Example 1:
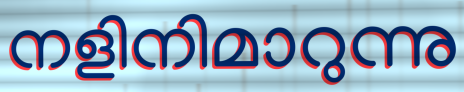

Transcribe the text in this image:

നളിനിമാറുന്നു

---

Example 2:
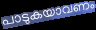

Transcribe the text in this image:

പാടുകയാവണം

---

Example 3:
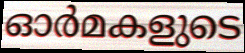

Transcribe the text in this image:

ഓർമകളുടെ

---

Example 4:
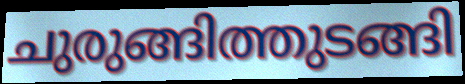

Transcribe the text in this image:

ചുരുങ്ങിത്തുടങ്ങി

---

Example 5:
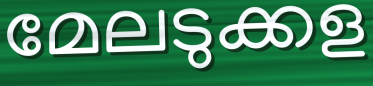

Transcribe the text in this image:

മേലടുക്കള